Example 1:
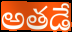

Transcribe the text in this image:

అతడే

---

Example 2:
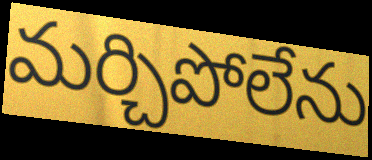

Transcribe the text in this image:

మర్చిపోలేను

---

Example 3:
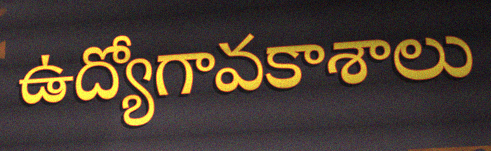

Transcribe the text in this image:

ఉద్యోగావకాశాలు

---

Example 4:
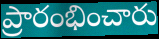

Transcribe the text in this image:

ప్రారంభించారు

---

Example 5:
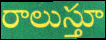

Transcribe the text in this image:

రాలుస్తూ